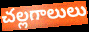
చల్లగాలులు